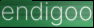
endigoo